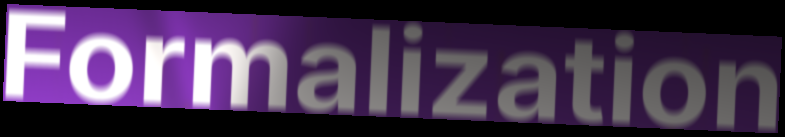
Formalization